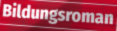
Bildungsroman